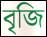
বৃজি